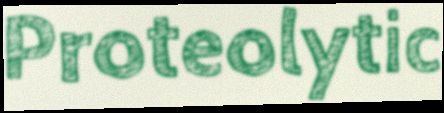
Proteolytic